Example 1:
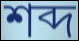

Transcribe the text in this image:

শব্দ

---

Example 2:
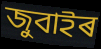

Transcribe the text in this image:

জুবাইৰ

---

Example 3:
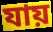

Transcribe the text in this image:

যায়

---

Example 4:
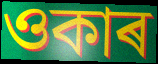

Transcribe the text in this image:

ওকাৰ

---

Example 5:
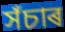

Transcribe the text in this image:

সঁচাৰ